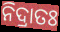
ନିଦ୍ରାତଃ